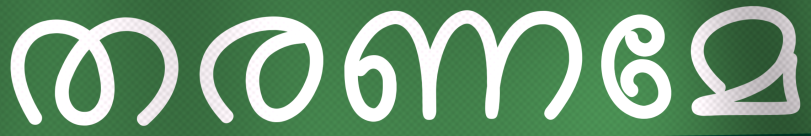
തരണമേ